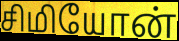
சிமியோன்